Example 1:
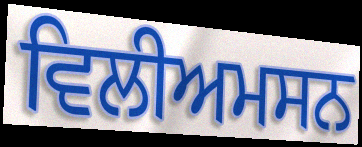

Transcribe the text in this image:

ਵਿਲੀਅਮਸਨ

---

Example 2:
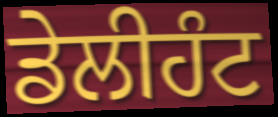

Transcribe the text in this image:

ਡੇਲੀਹੰਟ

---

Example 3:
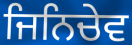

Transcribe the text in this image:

ਜਿਨਿਚੇਵ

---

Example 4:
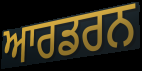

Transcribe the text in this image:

ਆਰਡਰਨ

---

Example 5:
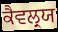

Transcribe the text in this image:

ਕੈਵਲ੍ਰਯ